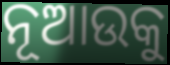
ନୂଆଉକୁ